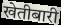
खेतीबारी